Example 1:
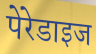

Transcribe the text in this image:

पेरेडाइज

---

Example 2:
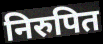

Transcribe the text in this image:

निरुपित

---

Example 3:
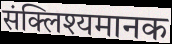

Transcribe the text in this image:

संक्लिश्यमानक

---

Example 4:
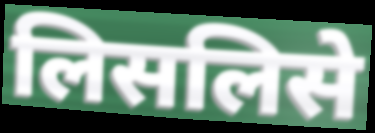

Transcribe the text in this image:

लिसलिसे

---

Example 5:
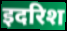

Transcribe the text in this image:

इदरिश